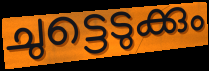
ചുട്ടെടുക്കും